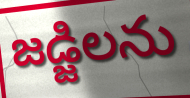
జడ్జిలను